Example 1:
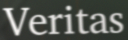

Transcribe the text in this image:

Veritas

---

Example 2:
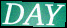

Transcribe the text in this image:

DAY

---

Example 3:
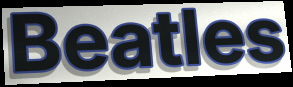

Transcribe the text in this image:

Beatles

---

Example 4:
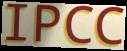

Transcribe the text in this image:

IPCC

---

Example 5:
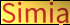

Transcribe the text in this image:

Simia